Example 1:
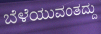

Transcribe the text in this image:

ಬೆಳೆಯುವಂತದ್ದು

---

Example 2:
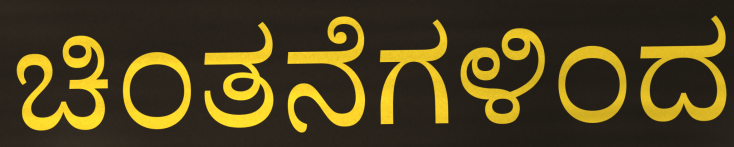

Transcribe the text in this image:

ಚಿಂತನೆಗಳಿಂದ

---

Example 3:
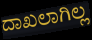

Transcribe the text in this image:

ದಾಖಲಾಗಿಲ್ಲ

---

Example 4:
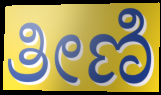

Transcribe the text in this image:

ತೀಣಿ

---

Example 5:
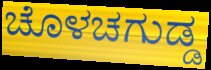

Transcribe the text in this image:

ಚೊಳಚಗುಡ್ಡ